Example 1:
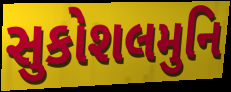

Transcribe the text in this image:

સુકોશલમુનિ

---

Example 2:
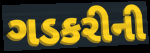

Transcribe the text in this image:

ગડકરીની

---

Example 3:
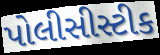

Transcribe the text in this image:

પોલીસીસ્ટીક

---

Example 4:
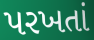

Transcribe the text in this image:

પરખતાં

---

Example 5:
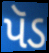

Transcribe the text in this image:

પૅડ